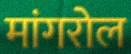
मांगरोल